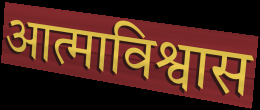
आत्माविश्वास